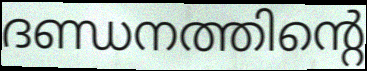
ദണ്ഡനത്തിന്റെ